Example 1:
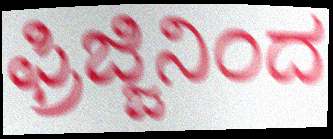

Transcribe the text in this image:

ಫ್ರಿಜ್ಜಿನಿಂದ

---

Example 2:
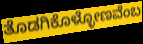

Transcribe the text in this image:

ತೊಡಗಿಕೊಳ್ಳೋಣವೆಂಬ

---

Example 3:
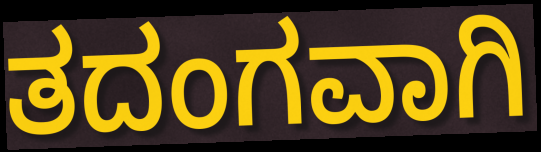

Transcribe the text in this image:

ತದಂಗವಾಗಿ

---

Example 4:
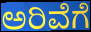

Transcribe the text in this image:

ಅರಿವೆಗೆ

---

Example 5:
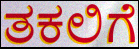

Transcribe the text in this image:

ತಕಲಿಗೆ